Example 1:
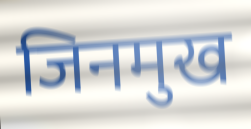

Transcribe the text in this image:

जिनमुख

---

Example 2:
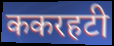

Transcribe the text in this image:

ककरहटी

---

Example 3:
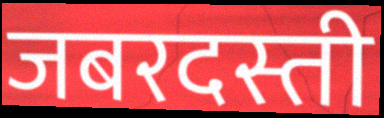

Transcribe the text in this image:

जबरदस्ती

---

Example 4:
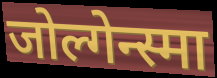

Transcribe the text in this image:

जोल्गेन्स्मा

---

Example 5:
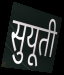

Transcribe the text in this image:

सुयूती